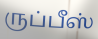
ருப்பீஸ்